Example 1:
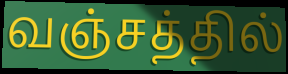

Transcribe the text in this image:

வஞ்சத்தில்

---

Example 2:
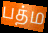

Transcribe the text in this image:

பத்ம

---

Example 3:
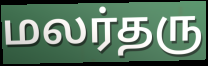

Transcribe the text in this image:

மலர்தரு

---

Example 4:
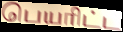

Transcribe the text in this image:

பெயரிட்ட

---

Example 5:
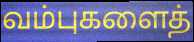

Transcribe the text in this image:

வம்புகளைத்